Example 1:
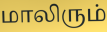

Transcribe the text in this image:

மாலிரும்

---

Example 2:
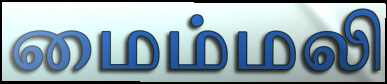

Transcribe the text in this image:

மைம்மலி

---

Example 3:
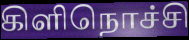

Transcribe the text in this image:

கிளிநொச்சி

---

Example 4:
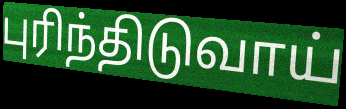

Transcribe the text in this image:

புரிந்திடுவாய்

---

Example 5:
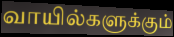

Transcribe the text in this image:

வாயில்களுக்கும்